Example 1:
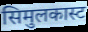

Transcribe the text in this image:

सिमुलकास्ट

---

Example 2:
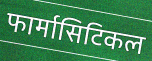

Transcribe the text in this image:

फार्मासिटिकल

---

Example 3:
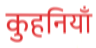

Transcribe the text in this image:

कुहनियाँ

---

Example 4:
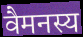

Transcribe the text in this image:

वैमनस्य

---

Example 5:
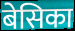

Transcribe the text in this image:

बेसिका